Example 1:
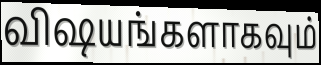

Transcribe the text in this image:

விஷயங்களாகவும்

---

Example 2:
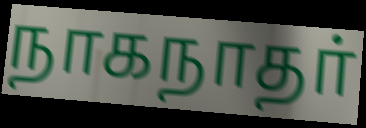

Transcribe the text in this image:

நாகநாதர்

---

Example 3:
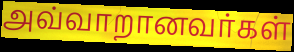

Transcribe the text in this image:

அவ்வாறானவர்கள்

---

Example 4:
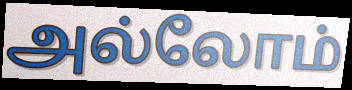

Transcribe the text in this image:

அல்லோம்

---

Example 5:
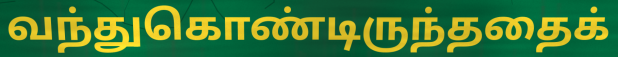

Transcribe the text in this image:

வந்துகொண்டிருந்ததைக்